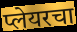
प्लेयरचा